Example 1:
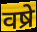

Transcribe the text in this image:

वष्रे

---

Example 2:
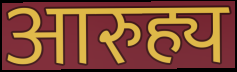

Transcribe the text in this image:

आरुह्य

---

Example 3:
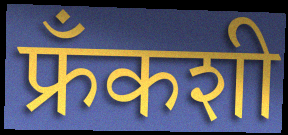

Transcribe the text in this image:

फ्रँकशी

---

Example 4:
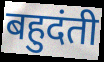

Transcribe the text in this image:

बहुदंती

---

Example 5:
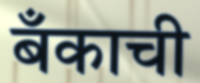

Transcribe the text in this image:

बँकाची